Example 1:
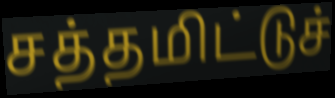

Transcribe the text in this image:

சத்தமிட்டுச்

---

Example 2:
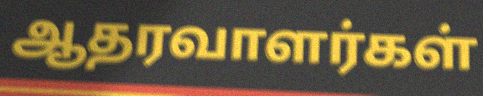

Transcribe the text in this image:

ஆதரவாளர்கள்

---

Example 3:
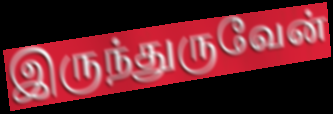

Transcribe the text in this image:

இருந்துருவேன்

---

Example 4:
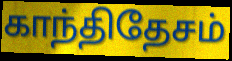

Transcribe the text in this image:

காந்திதேசம்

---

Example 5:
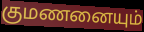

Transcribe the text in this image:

குமணனையும்